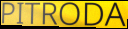
PITRODA